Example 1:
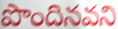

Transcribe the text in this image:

పొందినవని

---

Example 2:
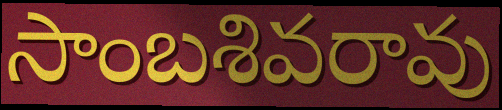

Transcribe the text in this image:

సాంబశివరావు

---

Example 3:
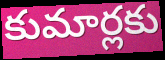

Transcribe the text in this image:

కుమార్లకు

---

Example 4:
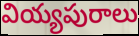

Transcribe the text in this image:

వియ్యపురాలు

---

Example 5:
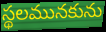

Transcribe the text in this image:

స్థలమునకును